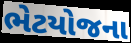
ભેટયોજના